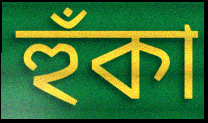
হুঁকা